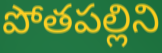
పోతపల్లిని